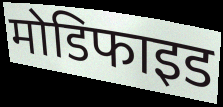
मोडिफाइड